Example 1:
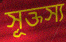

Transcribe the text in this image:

সূক্তস্য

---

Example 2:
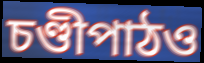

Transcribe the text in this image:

চণ্ডীপাঠও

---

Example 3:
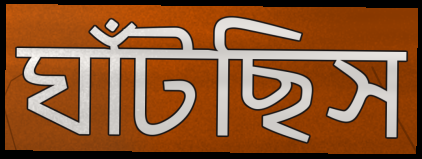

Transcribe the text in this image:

ঘাঁটছিস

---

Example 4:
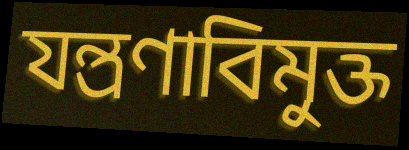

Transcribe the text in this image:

যন্ত্রণাবিমুক্ত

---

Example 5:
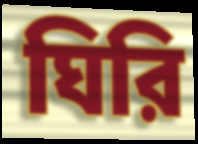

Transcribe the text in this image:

ঘিরি